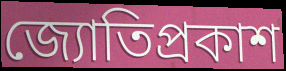
জ্যোতিপ্রকাশ